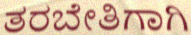
ತರಬೇತಿಗಾಗಿ